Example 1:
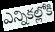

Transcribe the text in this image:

ఎన్నికల్లోకి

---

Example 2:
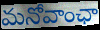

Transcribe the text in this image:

మనోవాంఛా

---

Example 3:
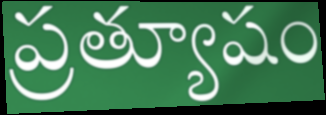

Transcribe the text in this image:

ప్రత్యూషం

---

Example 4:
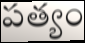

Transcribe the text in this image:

పత్యం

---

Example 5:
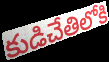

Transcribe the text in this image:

కుడిచేతిలోకి